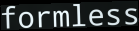
formless